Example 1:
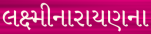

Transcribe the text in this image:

લક્ષ્મીનારાયણના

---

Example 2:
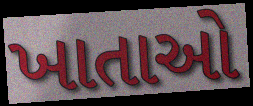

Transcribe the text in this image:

ખાતાઓ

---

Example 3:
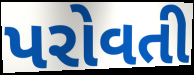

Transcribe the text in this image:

પરોવતી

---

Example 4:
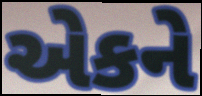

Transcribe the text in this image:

એકને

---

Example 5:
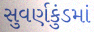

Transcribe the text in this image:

સુવર્ણકુંડમાં